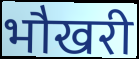
भौखरी